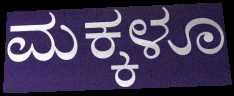
ಮಕ್ಕಳೂ